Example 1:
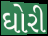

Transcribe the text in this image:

ઘોરી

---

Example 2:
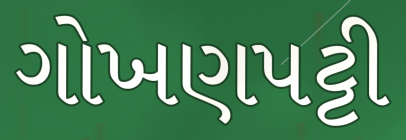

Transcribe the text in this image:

ગોખણપટ્ટી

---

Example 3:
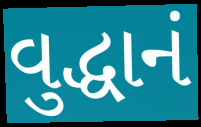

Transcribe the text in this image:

વુદ્ધાનં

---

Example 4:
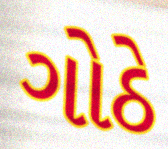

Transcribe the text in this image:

ગોઠે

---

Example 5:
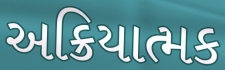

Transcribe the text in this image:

અક્રિયાત્મક